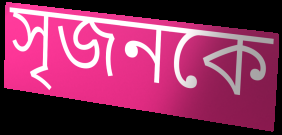
সৃজনকে